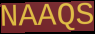
NAAQS